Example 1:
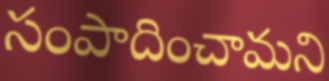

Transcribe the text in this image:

సంపాదించామని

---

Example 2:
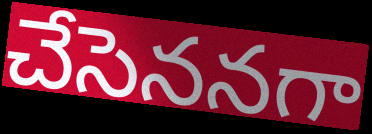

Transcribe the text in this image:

చేసెననగా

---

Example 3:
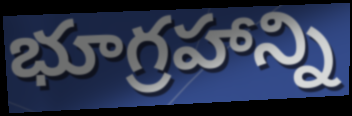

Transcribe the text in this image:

భూగ్రహాన్ని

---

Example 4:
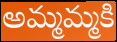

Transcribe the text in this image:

అమ్మమ్మకి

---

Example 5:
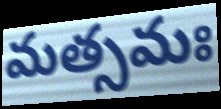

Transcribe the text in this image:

మత్సమః